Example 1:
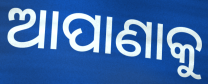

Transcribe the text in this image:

ଆପାଣାକୁ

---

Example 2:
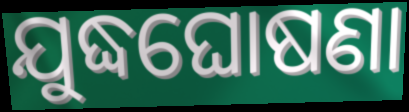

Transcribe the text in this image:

ଯୁଦ୍ଧଘୋଷଣା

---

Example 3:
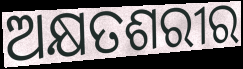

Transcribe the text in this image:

ଅକ୍ଷତଶରୀର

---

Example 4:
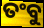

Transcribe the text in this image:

ତଂବୁ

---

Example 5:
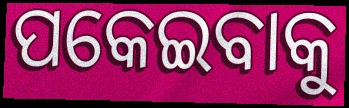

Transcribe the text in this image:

ପକେଇବାକୁ